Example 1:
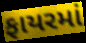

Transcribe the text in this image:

ફાયરમાં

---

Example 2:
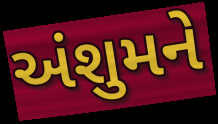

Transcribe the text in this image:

અંશુમને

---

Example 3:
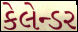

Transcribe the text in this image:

કેલેન્ડર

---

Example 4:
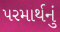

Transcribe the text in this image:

પરમાર્થનું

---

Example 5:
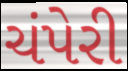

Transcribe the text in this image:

ચંપેરી